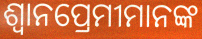
ଶ୍ଵାନପ୍ରେମୀମାନଙ୍କ